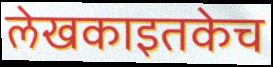
लेखकाइतकेच